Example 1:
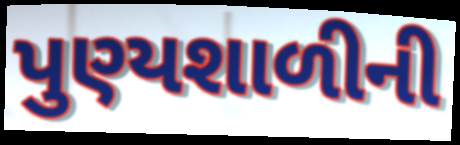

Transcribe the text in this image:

પુણ્યશાળીની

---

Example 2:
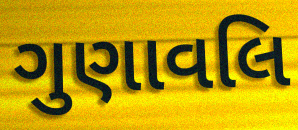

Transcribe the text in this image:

ગુણાવલિ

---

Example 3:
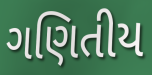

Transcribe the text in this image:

ગણિતીય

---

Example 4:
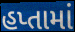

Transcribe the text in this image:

હપ્તામાં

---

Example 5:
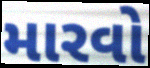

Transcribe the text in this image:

મારવો